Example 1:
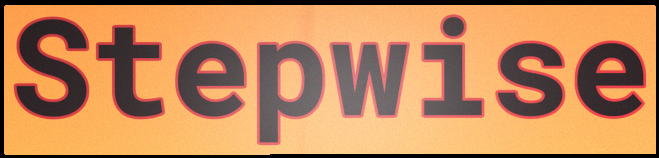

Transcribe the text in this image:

Stepwise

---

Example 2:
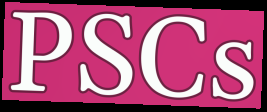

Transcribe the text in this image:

PSCs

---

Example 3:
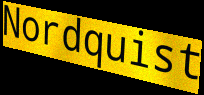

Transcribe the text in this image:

Nordquist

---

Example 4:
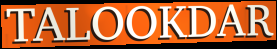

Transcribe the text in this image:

TALOOKDAR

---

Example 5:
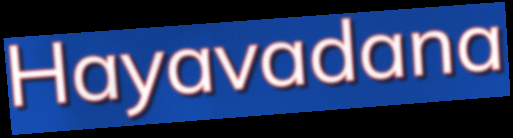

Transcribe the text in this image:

Hayavadana